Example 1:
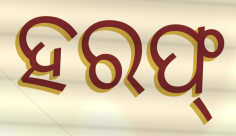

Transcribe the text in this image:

ହରଫ୍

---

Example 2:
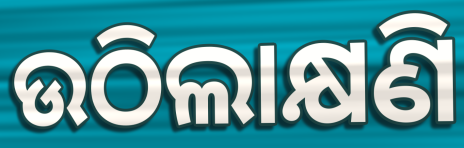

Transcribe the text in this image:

ଉଠିଲାକ୍ଷଣି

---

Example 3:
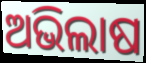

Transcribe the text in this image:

ଅଭିଲାଷ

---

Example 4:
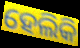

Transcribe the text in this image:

ହେଲିକି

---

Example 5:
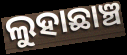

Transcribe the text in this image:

ଲୁହାଛାଞ୍ଚ